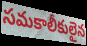
సమకాలీకులైన